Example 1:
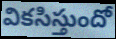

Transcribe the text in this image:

వికసిస్తుందో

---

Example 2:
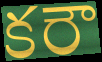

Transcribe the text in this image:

కరౌ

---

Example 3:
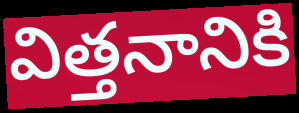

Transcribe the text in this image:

విత్తనానికి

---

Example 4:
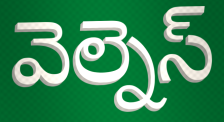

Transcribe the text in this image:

వెల్నెస్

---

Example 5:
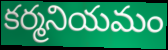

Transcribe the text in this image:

కర్మనియమం